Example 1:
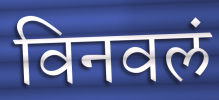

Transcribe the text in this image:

विनवलं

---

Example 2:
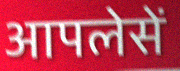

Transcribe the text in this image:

आपलेसें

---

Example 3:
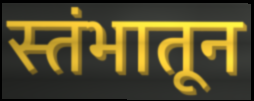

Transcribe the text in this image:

स्तंभातून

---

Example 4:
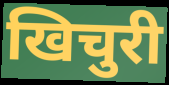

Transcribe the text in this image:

खिचुरी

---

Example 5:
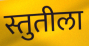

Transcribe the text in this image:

स्तुतीला